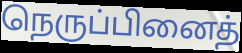
நெருப்பினைத்